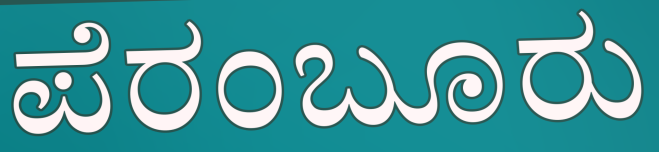
ಪೆರಂಬೂರು